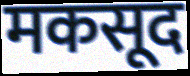
मकसूद